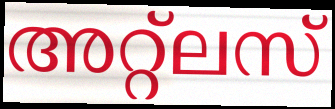
അറ്റ്ലസ്